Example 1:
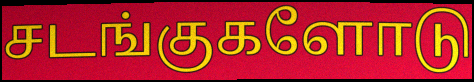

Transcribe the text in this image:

சடங்குகளோடு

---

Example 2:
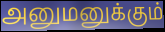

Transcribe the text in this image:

அனுமனுக்கும்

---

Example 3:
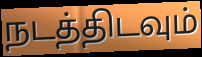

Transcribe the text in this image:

நடத்திடவும்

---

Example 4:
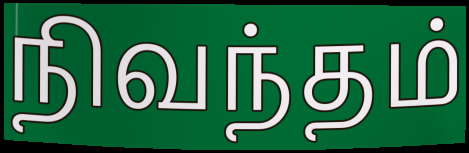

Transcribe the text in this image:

நிவந்தம்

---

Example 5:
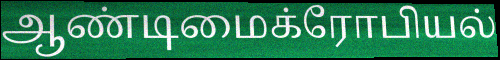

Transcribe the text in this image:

ஆண்டிமைக்ரோபியல்